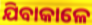
ଯିବାକାଳେ